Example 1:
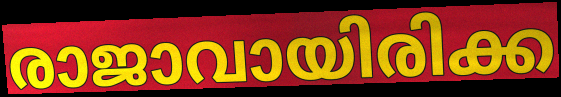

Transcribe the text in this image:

രാജാവായിരിക്ക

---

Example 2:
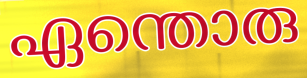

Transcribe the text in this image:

ഏന്തൊരു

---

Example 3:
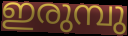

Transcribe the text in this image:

ഇരുമ്പു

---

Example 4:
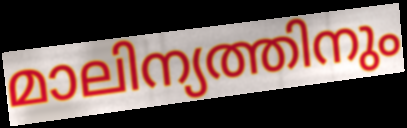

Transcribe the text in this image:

മാലിന്യത്തിനും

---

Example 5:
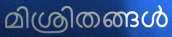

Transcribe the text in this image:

മിശ്രിതങ്ങൾ